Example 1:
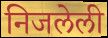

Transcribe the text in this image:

निजलेली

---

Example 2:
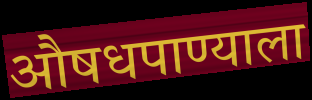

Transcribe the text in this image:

औषधपाण्याला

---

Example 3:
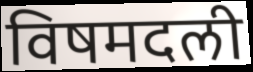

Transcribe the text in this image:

विषमदली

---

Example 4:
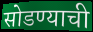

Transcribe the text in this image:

सोडण्याची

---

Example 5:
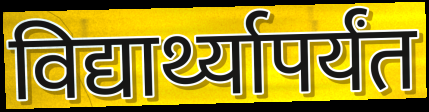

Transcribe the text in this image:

विद्यार्थ्यापर्यंत